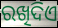
ରଖିଦିଏ